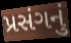
પ્રસંગનું